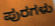
ಪುರಗಳು